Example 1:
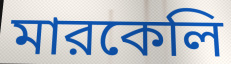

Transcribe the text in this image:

মারকেলি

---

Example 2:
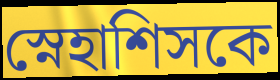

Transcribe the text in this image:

স্নেহাশিসকে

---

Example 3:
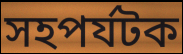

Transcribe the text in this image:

সহপর্যটক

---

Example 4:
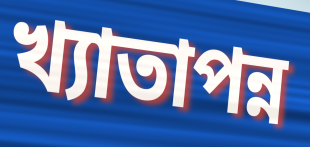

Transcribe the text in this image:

খ্যাতাপন্ন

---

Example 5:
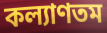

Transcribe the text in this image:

কল্যাণতম